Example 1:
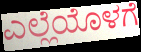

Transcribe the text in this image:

ಎಲ್ಲೆಯೊಳಗೆ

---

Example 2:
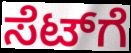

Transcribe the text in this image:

ಸೆಟ್‌ಗೆ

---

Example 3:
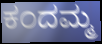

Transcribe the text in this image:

ಕಂದಮ್ಮ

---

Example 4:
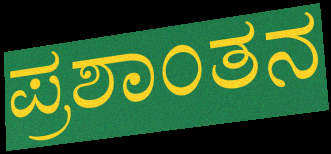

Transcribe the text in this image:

ಪ್ರಶಾಂತನ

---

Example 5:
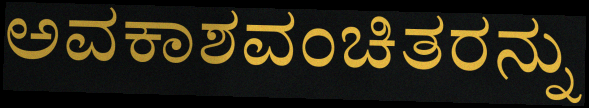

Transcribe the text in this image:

ಅವಕಾಶವಂಚಿತರನ್ನು